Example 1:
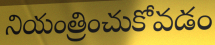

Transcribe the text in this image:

నియంత్రించుకోవడం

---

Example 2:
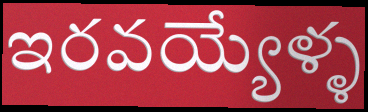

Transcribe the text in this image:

ఇరవయ్యేళ్ళ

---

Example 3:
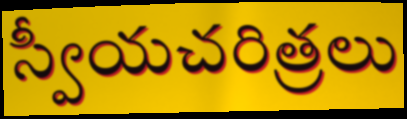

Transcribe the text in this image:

స్వీయచరిత్రలు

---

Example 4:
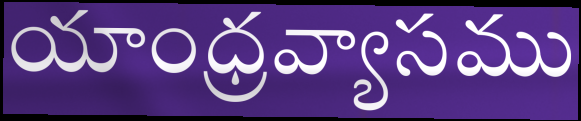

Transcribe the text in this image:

యాంధ్రవ్యాసము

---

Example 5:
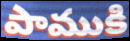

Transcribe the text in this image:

పాముకి